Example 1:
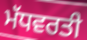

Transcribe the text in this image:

ਮੱਧਵਰਤੀ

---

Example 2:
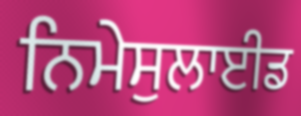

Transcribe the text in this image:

ਨਿਮੇਸੁਲਾਈਡ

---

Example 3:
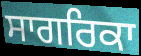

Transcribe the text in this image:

ਸਾਗਰਿਕਾ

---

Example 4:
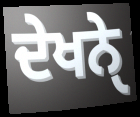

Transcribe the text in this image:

ਦੇਖਨੑੇ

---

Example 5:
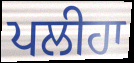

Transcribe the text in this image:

ਪਲੀਹਾ